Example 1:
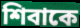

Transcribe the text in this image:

শিবাকে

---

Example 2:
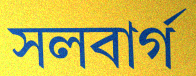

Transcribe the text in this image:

সলবার্গ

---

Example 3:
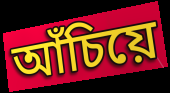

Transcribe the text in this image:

আঁচিয়ে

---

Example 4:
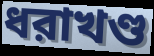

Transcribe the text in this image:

ধরাখণ্ড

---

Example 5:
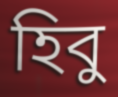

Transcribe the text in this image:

হিবু